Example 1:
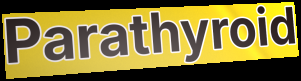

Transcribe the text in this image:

Parathyroid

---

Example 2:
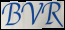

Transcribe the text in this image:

BVR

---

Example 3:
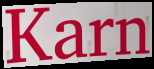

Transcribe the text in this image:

Karn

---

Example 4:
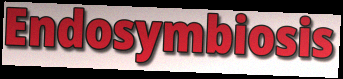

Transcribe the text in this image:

Endosymbiosis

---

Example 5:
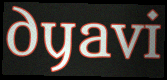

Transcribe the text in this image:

dyavi